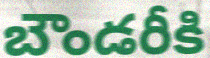
బౌండరీకి